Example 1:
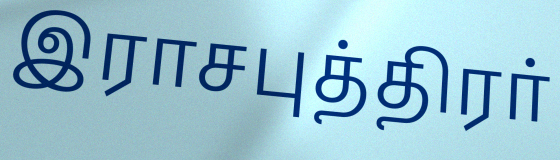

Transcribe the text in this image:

இராசபுத்திரர்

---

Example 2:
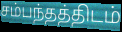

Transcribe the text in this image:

சம்பந்தத்திடம்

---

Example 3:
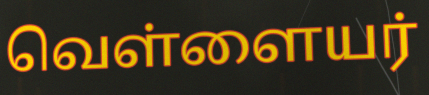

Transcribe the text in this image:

வெள்ளையர்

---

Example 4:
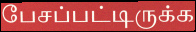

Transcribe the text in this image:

பேசப்பட்டிருக்க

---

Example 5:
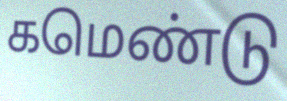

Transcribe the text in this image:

கமெண்டு